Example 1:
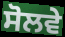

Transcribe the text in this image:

ਸੋਲਵੇ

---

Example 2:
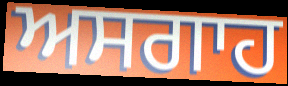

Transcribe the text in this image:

ਅਸਗਾਹ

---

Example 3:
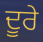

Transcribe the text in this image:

ਦੂਰੇ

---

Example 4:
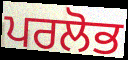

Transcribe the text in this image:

ਪਰਲੋਭ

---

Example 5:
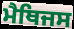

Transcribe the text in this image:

ਮੈਥਿਜਸ